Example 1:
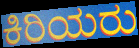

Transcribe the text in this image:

ಕಿರಿಯರು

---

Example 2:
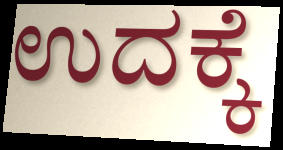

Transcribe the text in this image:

ಉದಕ್ಕೆ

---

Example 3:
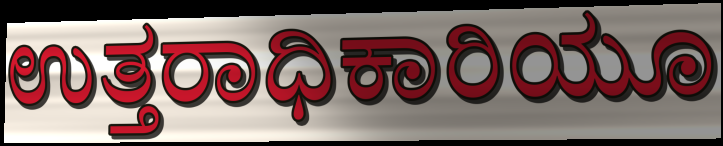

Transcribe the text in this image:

ಉತ್ತರಾಧಿಕಾರಿಯೂ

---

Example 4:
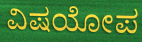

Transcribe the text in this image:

ವಿಷಯೋಪ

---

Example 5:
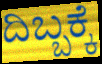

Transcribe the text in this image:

ದಿಬ್ಬಕ್ಕೆ